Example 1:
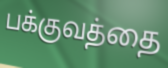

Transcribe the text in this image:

பக்குவத்தை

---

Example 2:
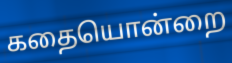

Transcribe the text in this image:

கதையொன்றை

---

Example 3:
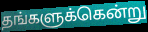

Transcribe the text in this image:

தங்களுக்கென்று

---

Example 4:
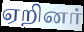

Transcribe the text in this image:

ஏறினர்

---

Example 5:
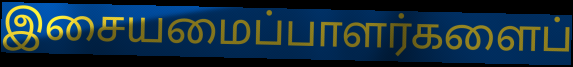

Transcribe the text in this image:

இசையமைப்பாளர்களைப்